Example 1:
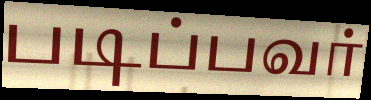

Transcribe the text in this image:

படிப்பவர்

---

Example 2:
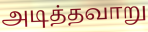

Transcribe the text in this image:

அடித்தவாறு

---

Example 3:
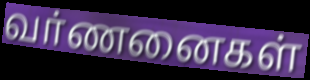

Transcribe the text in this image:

வர்ணனைகள்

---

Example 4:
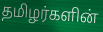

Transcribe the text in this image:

தமிழர்களின்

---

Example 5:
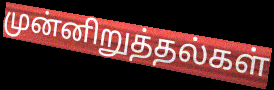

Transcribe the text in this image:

முன்னிறுத்தல்கள்